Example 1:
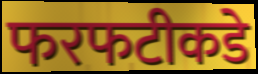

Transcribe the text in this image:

फरफटीकडे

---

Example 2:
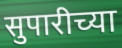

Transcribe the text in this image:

सुपारीच्या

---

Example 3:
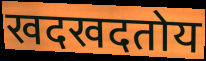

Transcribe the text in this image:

खदखदतोय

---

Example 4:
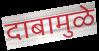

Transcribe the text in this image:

दाबामुळे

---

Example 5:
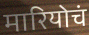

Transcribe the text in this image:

मारियोचं